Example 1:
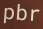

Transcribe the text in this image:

pbr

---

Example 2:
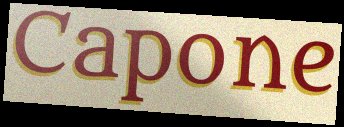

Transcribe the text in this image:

Capone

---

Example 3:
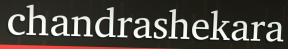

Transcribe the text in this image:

chandrashekara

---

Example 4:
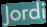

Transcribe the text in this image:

Jordi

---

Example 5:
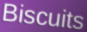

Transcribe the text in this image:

Biscuits